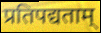
प्रतिपद्यताम्